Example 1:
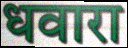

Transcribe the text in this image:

धवारा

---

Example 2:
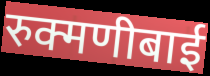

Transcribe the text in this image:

रुक्मणीबाई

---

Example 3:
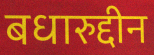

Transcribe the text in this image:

बधारुद्दीन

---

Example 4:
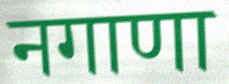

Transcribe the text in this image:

नगाणा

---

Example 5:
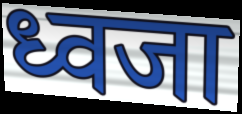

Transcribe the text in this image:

ध्वजा